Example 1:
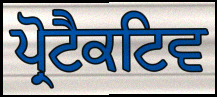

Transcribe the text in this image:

ਪ੍ਰੋਟੈਕਟਿਵ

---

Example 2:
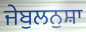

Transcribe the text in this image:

ਜੇਬੁਲਨੁਸ਼ਾ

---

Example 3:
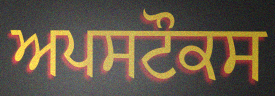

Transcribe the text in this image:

ਅਪਸਟੌਕਸ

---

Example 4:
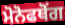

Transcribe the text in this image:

ਮੋਨੋਫਥੋਂਗ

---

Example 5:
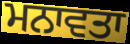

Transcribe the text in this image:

ਮਨਾਵਤਾ